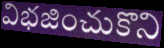
విభజించుకొని